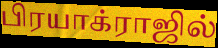
பிரயாக்ராஜில்